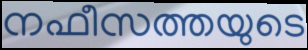
നഫീസത്തയുടെ